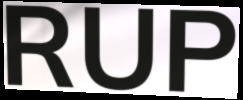
RUP